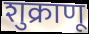
शुक्राणू